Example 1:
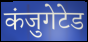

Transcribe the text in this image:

कंजुगेटेड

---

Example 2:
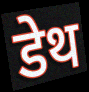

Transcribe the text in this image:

डेथ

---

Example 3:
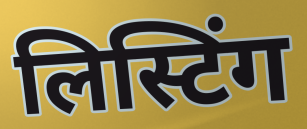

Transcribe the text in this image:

लिस्टिंग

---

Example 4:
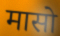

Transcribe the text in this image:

मासो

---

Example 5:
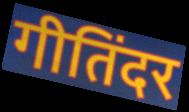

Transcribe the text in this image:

गीतिंदर